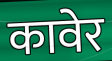
कावेर